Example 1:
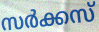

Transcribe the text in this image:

സർക്കസ്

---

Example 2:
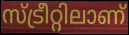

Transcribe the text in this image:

സ്ട്രീറ്റിലാണ്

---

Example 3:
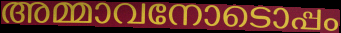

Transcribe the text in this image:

അമ്മാവനോടൊപ്പം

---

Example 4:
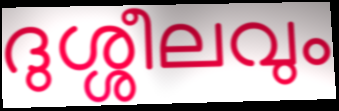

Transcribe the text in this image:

ദുശ്ശീലവും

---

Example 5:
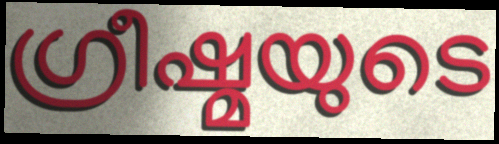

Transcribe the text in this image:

ഗ്രീഷ്മയുടെ